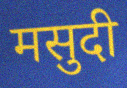
मसुदी